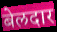
बेलदार